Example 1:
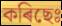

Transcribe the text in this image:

কৰিছেঃ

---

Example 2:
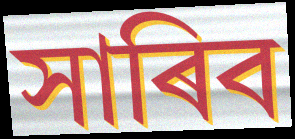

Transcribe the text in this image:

সাৰিব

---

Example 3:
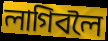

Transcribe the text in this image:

লাগিবলৈ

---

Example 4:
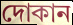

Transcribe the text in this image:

দোকান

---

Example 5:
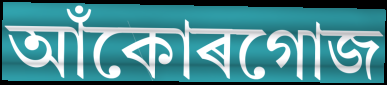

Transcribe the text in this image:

আঁকোৰগোজ